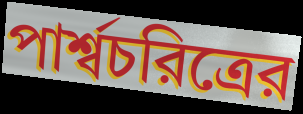
পার্শ্বচরিত্রের